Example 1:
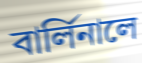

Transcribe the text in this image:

বার্লিনালে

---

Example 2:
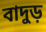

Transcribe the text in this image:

বাদুড়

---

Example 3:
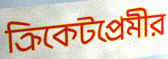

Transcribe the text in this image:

ক্রিকেটপ্রেমীর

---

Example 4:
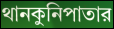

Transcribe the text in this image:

থানকুনিপাতার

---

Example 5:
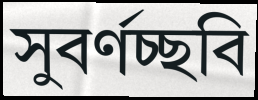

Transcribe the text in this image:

সুবর্ণচ্ছবি